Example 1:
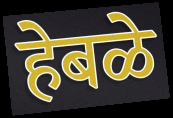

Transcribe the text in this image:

हेबळे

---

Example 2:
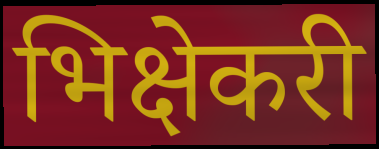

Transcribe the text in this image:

भिक्षेकरी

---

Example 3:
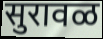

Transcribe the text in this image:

सुरावळ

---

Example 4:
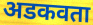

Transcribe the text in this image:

अडकवता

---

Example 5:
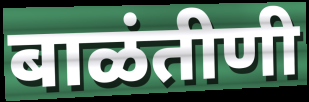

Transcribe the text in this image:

बाळंतीणी